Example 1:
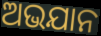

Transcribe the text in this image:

ଅଭଯାନ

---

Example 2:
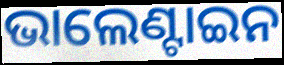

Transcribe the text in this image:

ଭାଲେଣ୍ଟାଇନ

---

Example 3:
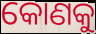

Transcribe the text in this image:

କୋଣକୁ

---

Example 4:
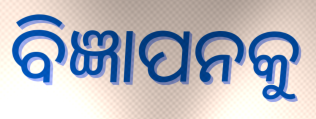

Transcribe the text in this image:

ବିଜ୍ଞାପନକୁ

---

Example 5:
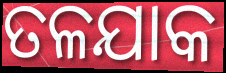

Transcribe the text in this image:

ତଳଯାକ